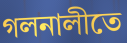
গলনালীতে